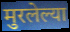
मुरलेल्या